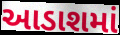
આડાશમાં